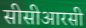
सीसीआरसी